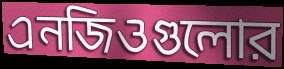
এনজিওগুলোর